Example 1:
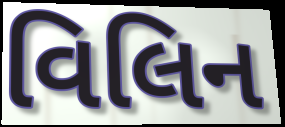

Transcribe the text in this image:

વિલિન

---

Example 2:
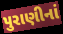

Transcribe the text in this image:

પુરાણીનાં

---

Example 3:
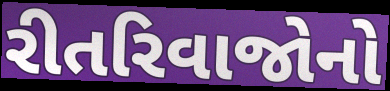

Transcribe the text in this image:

રીતરિવાજોનો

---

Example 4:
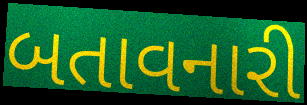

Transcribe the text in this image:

બતાવનારી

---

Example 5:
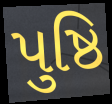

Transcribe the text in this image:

પુષ્ઠિ